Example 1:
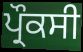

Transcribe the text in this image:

ਪ੍ਰੌਕਸੀ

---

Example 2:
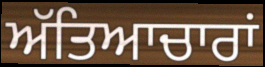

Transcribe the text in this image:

ਅੱਤਿਆਚਾਰਾਂ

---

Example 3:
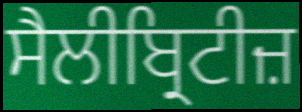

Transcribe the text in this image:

ਸੈਲੀਬ੍ਰਿਟੀਜ਼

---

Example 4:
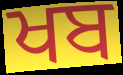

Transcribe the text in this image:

ਖਬ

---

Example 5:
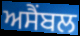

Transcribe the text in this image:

ਅਸੈਂਬਲ